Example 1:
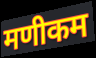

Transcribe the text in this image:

मणीकम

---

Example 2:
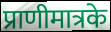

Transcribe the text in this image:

प्राणीमात्रके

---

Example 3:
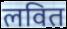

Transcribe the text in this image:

लवित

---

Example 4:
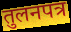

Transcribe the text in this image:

तुलनपत्र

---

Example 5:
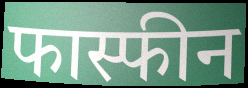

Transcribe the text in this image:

फास्फीन